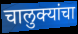
चालुक्यांचा